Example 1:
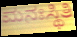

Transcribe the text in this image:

ಮನಃಸ್ಥಿತಿ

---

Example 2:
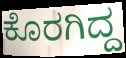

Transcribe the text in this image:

ಕೊರಗಿದ್ದ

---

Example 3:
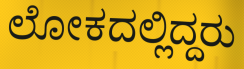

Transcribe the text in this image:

ಲೋಕದಲ್ಲಿದ್ದರು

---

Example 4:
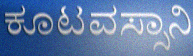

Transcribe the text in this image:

ಕೂಟವಸ್ಸಾನಿ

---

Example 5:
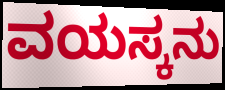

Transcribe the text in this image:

ವಯಸ್ಕನು